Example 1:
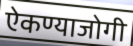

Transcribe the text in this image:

ऐकण्याजोगी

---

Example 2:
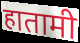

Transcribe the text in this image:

हातामी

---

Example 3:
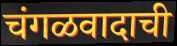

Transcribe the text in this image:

चंगळवादाची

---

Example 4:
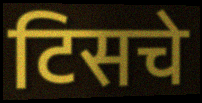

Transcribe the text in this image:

टिसचे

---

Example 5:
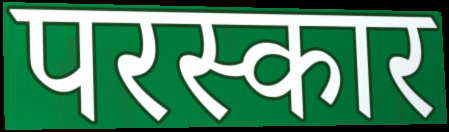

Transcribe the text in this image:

परस्कार